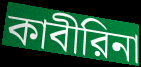
কাবীরিনা